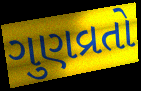
ગુણવ્રતો